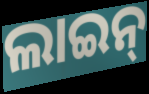
ଲାଇନ୍